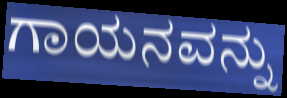
ಗಾಯನವನ್ನು